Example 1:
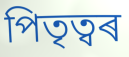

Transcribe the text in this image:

পিতৃত্বৰ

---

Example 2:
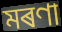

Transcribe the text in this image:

মৰণা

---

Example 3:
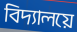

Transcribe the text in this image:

বিদ্যালয়ে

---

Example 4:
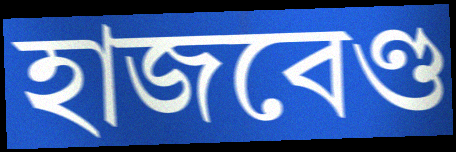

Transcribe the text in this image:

হাজবেণ্ড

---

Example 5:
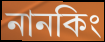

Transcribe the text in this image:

নানকিং